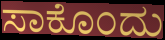
ಸಾಕೊಂದು